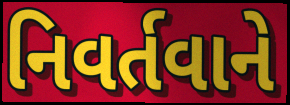
નિવર્તવાને